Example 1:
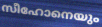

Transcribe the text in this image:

സീഹോനെയും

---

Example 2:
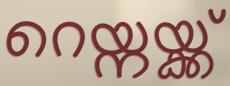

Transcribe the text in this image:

റെയ്നയ്ക്ക്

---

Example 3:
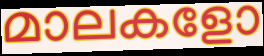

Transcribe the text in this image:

മാലകളോ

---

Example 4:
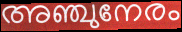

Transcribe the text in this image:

അഞ്ചുനേരം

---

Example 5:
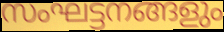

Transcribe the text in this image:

സംഘട്ടനങ്ങളും